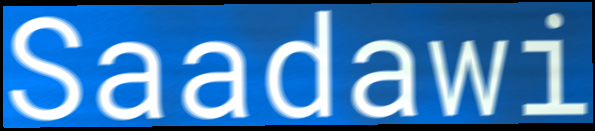
Saadawi